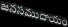
జనసముదాయం